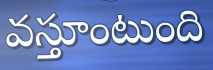
వస్తూంటుంది